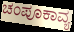
ಚಂಪೂಕಾವ್ಯ